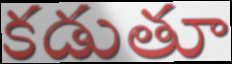
కడుతూ